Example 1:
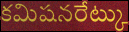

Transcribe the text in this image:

కమిషనరేట్కు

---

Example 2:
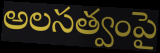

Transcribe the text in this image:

అలసత్వంపై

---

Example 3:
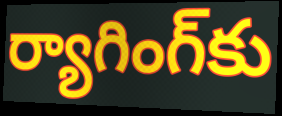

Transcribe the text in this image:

ర్యాగింగ్‌కు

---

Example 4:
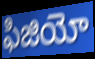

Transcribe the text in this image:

ఫిజియో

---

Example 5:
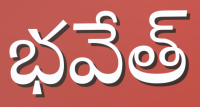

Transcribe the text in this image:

భవేత్